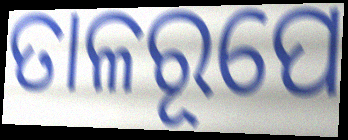
ତାଳରୂପେ